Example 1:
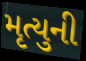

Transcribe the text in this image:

મૃત્યુની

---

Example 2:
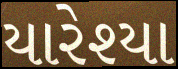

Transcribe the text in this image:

યારેશ્યા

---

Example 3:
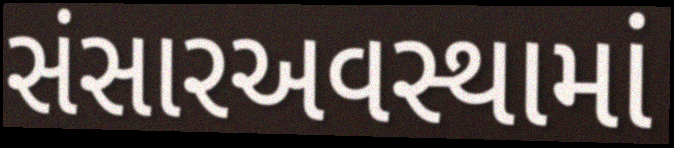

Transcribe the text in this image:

સંસારઅવસ્થામાં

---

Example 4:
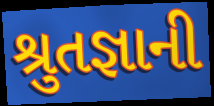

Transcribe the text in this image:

શ્રુતજ્ઞાની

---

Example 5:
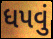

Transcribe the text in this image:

ધપવું